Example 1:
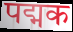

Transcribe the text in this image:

पद्मक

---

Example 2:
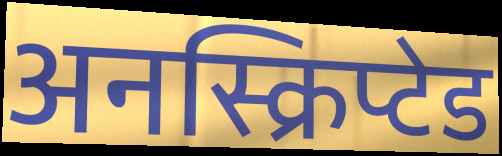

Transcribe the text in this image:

अनस्क्रिप्टेड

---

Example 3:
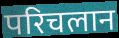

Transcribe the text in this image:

परिचलान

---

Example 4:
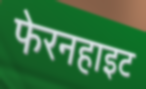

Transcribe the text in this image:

फेरनहाइट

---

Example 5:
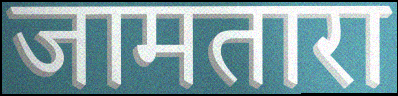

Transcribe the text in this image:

जामतारा